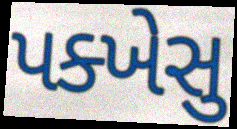
પક્ખેસુ